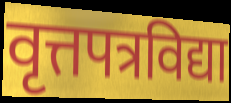
वृत्तपत्रविद्या